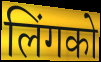
लिंगको